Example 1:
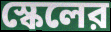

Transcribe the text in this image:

স্কেলের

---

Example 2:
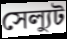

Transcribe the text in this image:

সেল্যুট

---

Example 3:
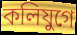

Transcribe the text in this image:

কলিযুগে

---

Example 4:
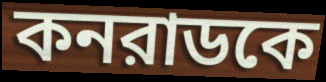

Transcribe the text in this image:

কনরাডকে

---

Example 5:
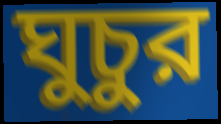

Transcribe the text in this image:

ঘুচুর